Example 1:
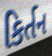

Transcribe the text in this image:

કિર્તન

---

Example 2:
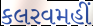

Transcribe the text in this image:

કલરવમહીં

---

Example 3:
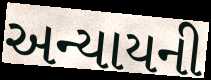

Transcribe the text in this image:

અન્યાયની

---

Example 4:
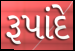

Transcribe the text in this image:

રૂપાંદે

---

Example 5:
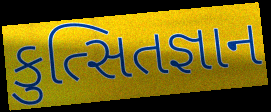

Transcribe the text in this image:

કુત્સિતજ્ઞાન